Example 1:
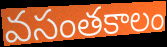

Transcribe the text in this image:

వసంతకాలం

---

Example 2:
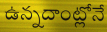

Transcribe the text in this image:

ఉన్నదాంట్లోనే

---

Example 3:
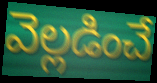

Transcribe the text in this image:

వెల్లడించే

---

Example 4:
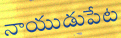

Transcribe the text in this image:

నాయుడుపేట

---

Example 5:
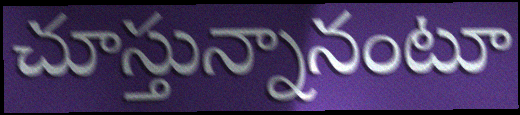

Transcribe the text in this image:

చూస్తున్నానంటూ